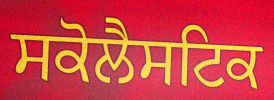
ਸਕੋਲੈਸਟਿਕ